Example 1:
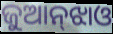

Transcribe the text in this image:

ଜୁଆନ୍‌ଝାଓ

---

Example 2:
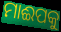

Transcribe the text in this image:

ମାଈପକୁ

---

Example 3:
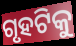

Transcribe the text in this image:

ଗୃହଟିକୁ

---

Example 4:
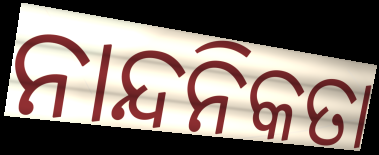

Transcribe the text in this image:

ନାନ୍ଦନିକତା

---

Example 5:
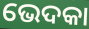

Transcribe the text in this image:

ଭେଦକା